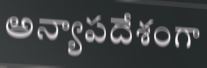
అన్యాపదేశంగా